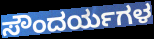
ಸೌಂದರ್ಯಗಳ